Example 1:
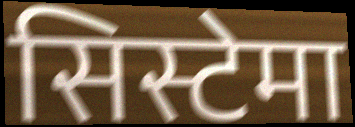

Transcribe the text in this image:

सिस्टेमा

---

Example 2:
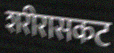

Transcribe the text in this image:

शरीरासकट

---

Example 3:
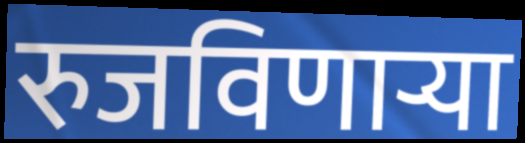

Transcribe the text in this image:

रुजविणाऱ्या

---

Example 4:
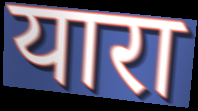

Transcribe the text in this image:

यारा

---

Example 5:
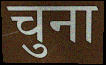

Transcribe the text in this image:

चुना